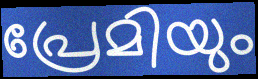
പ്രേമിയും